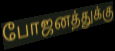
போஜனத்துக்கு